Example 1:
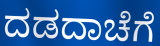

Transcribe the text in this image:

ದಡದಾಚೆಗೆ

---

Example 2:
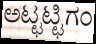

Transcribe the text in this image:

ಅಟ್ಟಟ್ಟಿಗಂ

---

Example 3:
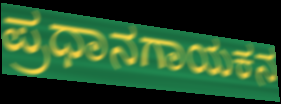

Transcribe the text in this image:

ಪ್ರಧಾನಗಾಯಕನ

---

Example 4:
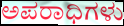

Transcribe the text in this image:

ಅಪರಾಧಿಗಳು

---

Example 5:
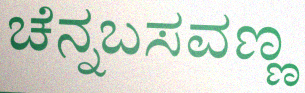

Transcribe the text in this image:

ಚೆನ್ನಬಸವಣ್ಣ